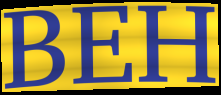
BEH